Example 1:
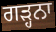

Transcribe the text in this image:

ਗੜ੍ਹਨਾ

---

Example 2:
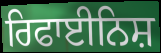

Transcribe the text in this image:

ਰਿਫਾਈਨਿਸ਼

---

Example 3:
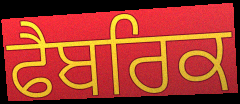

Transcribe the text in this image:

ਫੈਬਰਿਕ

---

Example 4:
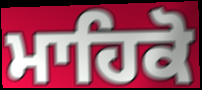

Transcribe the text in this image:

ਮਾਹਿਕੋ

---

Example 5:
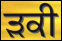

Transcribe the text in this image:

ੜਕੀ